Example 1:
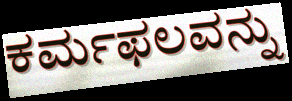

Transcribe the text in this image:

ಕರ್ಮಫಲವನ್ನು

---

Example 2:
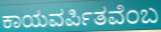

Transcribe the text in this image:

ಕಾಯವರ್ಪಿತವೆಂಬ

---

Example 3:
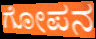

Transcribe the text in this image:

ಗೋಪನ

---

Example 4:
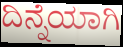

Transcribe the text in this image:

ದಿನ್ನೆಯಾಗಿ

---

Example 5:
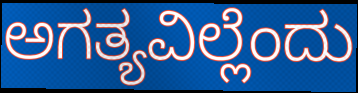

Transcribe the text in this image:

ಅಗತ್ಯವಿಲ್ಲೆಂದು